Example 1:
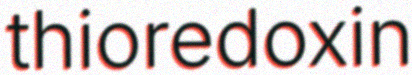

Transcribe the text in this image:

thioredoxin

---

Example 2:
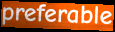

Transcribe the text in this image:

preferable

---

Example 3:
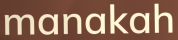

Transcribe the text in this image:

manakah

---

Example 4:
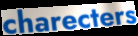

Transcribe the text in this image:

charecters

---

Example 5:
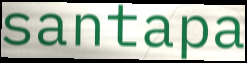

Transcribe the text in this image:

santapa